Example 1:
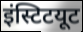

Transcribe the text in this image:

इंस्टिटयूट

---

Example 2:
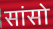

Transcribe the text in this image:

सांसो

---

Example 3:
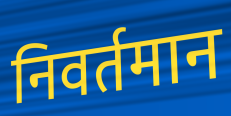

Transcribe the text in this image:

निवर्तमान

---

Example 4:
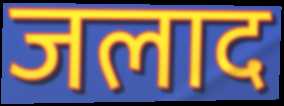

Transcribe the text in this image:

जलाद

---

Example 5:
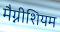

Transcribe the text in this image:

मैग्नीशियम